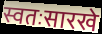
स्वतःसारखे